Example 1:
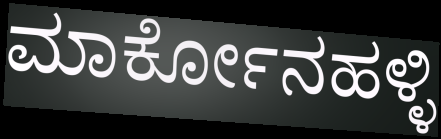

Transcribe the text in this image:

ಮಾರ್ಕೋನಹಳ್ಳಿ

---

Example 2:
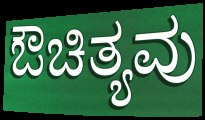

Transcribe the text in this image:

ಔಚಿತ್ಯವು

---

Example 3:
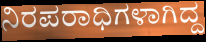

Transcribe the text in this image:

ನಿರಪರಾಧಿಗಳಾಗಿದ್ದ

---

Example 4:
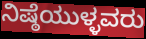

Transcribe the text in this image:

ನಿಷ್ಠೆಯುಳ್ಳವರು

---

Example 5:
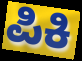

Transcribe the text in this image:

ಪಿಕಿ